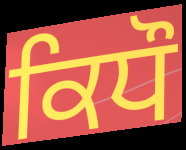
ਕਿਧੌ